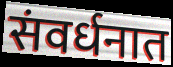
संवर्धनात